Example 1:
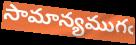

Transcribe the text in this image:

సామాన్యముగఁ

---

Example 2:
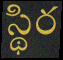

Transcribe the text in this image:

స్థిర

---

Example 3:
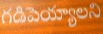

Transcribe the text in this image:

గడిపెయ్యాలని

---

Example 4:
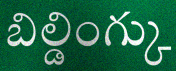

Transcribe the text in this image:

బిల్డింగ్కు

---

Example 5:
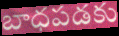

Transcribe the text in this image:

బాధపడకు